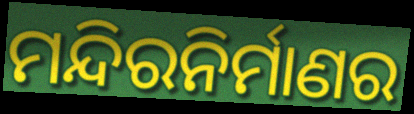
ମନ୍ଦିରନିର୍ମାଣର